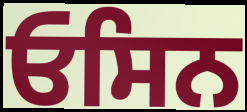
ਓਸਿਨ